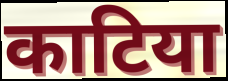
काटिया